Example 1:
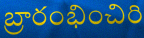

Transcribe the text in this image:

బ్రారంభించిరి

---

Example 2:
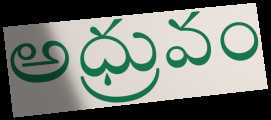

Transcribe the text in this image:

అధ్రువం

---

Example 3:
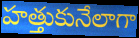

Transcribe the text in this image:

హత్తుకునేలాగా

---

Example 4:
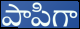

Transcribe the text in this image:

పాపిగా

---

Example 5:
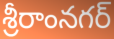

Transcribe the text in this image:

శ్రీరాంనగర్